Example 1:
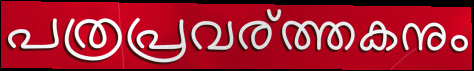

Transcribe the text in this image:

പത്രപ്രവര്ത്തകനും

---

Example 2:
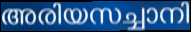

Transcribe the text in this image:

അരിയസച്ചാനി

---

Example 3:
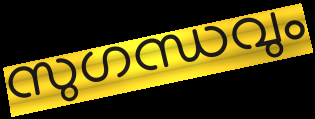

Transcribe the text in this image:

സുഗന്ധവും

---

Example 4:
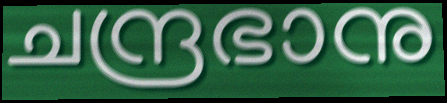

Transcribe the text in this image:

ചന്ദ്രഭാനു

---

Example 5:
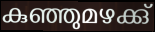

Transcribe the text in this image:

കുഞ്ഞുമഴക്കു്